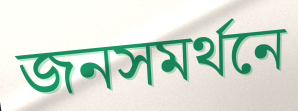
জনসমর্থনে